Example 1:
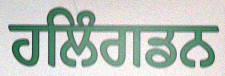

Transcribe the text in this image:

ਹਲਿੰਗਡਨ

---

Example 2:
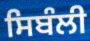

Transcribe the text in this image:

ਸਿਬੰਲੀ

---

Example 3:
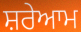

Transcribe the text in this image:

ਸ਼ਰੇਆਮ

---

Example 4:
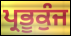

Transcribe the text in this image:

ਪ੍ਰਭੂਕੁੰਜ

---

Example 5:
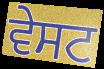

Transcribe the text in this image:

ਵੇਸਟ